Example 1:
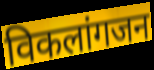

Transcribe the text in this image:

विकलांगजन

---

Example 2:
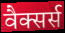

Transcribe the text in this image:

वैक्सर्स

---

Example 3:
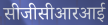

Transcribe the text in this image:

सीजीसीआरआई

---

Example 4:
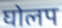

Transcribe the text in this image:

घोलप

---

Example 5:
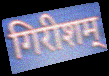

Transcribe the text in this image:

गिरीशम्